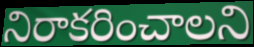
నిరాకరించాలని